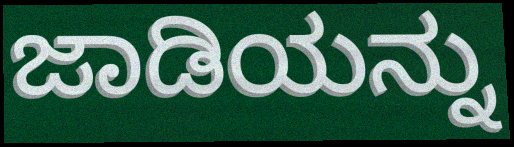
ಜಾಡಿಯನ್ನು